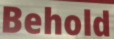
Behold